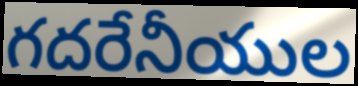
గదరేనీయుల